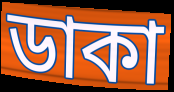
ডাকা